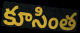
కూసింత